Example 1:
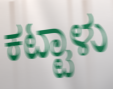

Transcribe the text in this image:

ಕಟ್ಟಾಳು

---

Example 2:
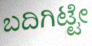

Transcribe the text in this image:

ಬದಿಗಿಟ್ಟೇ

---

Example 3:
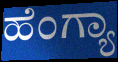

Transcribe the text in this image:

ಹೆಂಗ್ಯಾ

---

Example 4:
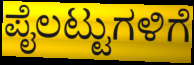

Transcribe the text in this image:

ಪೈಲಟ್ಟುಗಳಿಗೆ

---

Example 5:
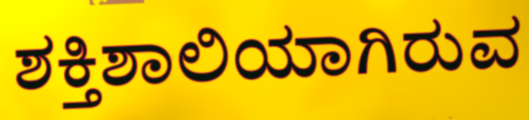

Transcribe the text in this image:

ಶಕ್ತಿಶಾಲಿಯಾಗಿರುವ